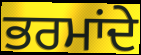
ਭਰਮਾਂਦੇ